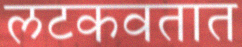
लटकवतात